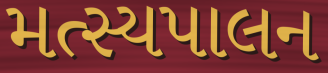
મત્સ્યપાલન